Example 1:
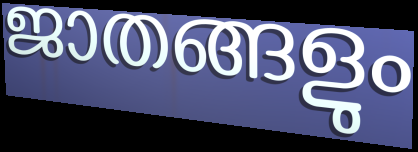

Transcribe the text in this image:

ജാതങ്ങളും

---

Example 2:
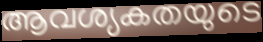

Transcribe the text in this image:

ആവശ്യകതയുടെ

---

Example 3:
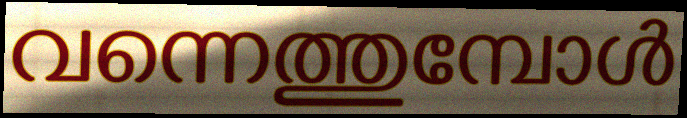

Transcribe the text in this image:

വന്നെത്തുമ്പോൾ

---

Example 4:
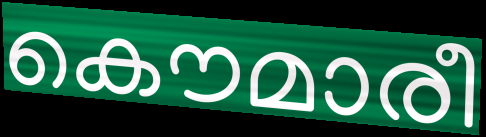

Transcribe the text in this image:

കൌമാരീ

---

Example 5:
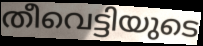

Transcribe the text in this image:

തീവെട്ടിയുടെ